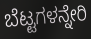
ಬೆಟ್ಟಗಳನ್ನೇರಿ